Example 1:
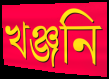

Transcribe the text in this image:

খঞ্জনি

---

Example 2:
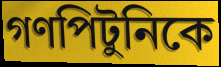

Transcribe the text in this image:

গণপিটুনিকে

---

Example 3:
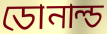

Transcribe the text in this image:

ডোনাল্ড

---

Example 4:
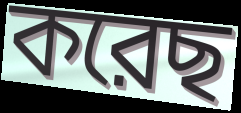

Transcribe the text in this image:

করেছ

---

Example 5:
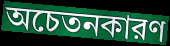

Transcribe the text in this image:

অচেতনকারণ